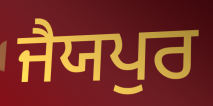
ਜੈਯਪੁਰ